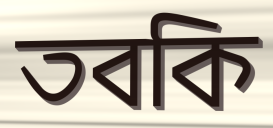
তবকি